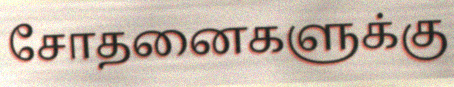
சோதனைகளுக்கு